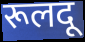
रूलदू